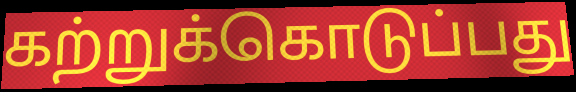
கற்றுக்கொடுப்பது